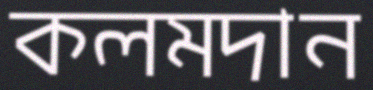
কলমদান